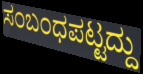
ಸಂಬಂಧಪಟ್ಟದ್ದು